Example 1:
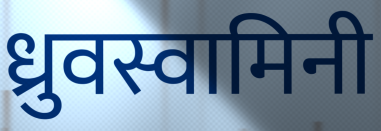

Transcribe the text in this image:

ध्रुवस्वामिनी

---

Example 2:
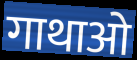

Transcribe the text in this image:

गाथाओ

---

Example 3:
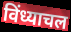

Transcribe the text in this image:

विंध्याचल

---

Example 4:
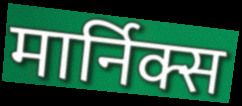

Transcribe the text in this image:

मार्निक्स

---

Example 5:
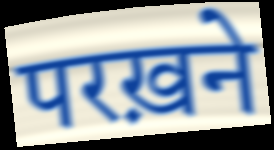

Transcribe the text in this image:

परख़ने